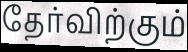
தேர்விற்கும்